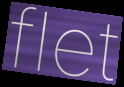
flet